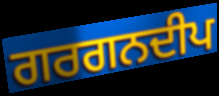
ਗਰਗਨਦੀਪ